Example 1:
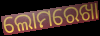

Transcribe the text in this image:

ଲୋମରେଖା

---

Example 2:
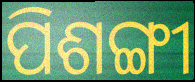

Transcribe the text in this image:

ପିଶଙ୍ଗୀ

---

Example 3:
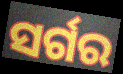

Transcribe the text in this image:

ସର୍ଗର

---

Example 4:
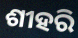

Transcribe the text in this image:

ଶୀହରି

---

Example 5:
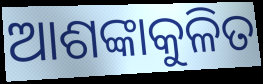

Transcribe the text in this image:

ଆଶଙ୍କାକୁଳିତ